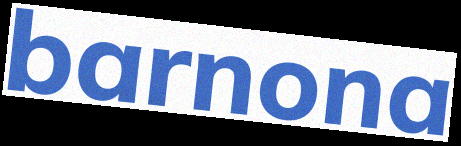
barnona